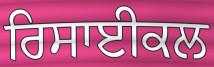
ਰਿਸਾਈਕਲ